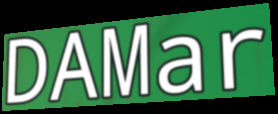
DAMar